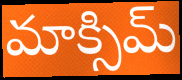
మాక్సిమ్